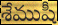
శేముషీ